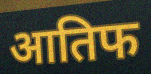
आतिफ